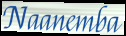
Naanemba